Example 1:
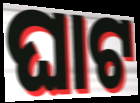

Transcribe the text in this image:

ଘାଟ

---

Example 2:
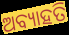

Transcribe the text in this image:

ଅବ୍ୟାହତି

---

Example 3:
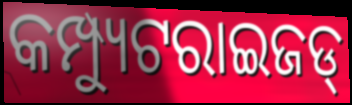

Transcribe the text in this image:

କମ୍ପ୍ୟୁଟରାଇଜଡ୍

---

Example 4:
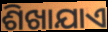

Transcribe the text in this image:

ଶିଖାଯାଏ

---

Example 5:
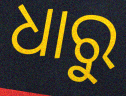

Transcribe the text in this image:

ଧାରୁ